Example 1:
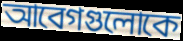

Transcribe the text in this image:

আবেগগুলোকে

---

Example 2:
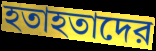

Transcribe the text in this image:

হতাহতাদের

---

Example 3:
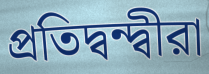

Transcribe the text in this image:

প্রতিদ্বন্দ্বীরা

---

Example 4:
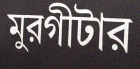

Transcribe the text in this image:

মুরগীটার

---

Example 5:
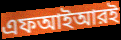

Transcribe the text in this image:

এফআইআরই